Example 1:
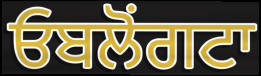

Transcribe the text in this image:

ਓਬਲੋਂਗਟਾ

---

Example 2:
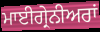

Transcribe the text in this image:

ਮਾਈਗ੍ਰੇਨੀਅਰਾਂ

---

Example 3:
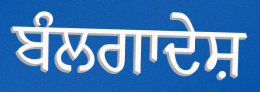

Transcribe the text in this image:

ਬੰਲਗਾਦੇਸ਼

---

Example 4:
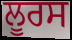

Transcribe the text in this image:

ਲੂਰਸ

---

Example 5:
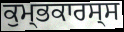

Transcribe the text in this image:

ਕੁਮ੍ਭਕਾਰਸ੍ਸ